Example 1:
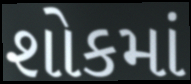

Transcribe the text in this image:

શોકમાં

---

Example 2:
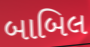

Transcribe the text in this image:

બાબિલ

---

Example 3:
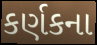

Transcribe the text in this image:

કર્ણકના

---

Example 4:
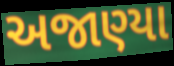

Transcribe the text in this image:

અજાણ્યા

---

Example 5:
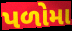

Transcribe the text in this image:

પળોમા